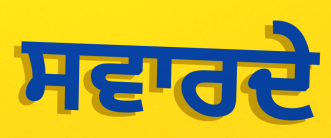
ਸਵਾਰਦੇ